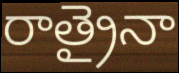
రాత్రైనా